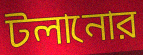
টলানোর